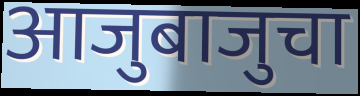
आजुबाजुचा